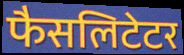
फैसलिटेटर